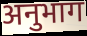
अनुभाग